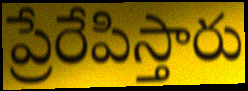
ప్రేరేపిస్తారు